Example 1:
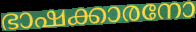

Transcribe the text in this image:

ഭാഷക്കാരനോ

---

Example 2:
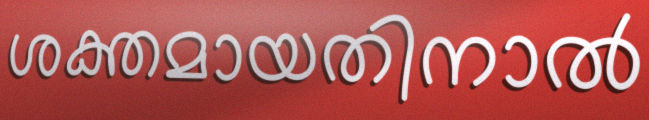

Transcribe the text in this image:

ശക്തമായതിനാൽ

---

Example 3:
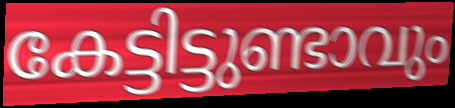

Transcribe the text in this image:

കേട്ടിട്ടുണ്ടാവും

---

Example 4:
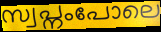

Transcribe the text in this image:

സ്വപ്നംപോലെ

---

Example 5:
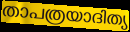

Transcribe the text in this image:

താപത്രയാദിത്യ